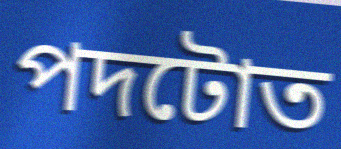
পদটোত